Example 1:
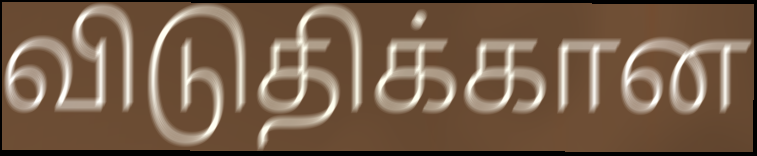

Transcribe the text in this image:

விடுதிக்கான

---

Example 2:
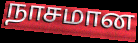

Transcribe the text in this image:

நாசமான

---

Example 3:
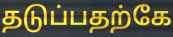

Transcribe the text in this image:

தடுப்பதற்கே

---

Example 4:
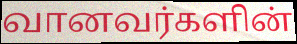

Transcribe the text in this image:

வானவர்களின்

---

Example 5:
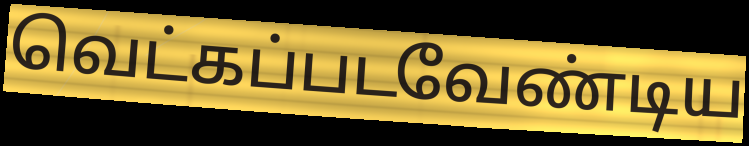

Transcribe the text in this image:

வெட்கப்படவேண்டிய